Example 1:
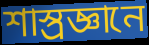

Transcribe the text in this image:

শাস্ত্রজ্ঞানে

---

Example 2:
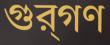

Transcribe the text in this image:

গুর্‌গণ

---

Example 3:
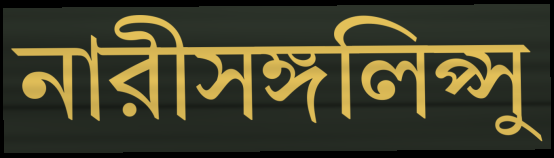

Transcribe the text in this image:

নারীসঙ্গলিপ্সু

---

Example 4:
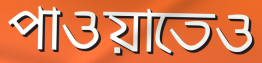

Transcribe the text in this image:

পাওয়াতেও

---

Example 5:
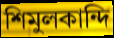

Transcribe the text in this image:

শিমুলকান্দি